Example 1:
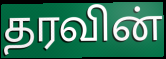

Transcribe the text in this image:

தரவின்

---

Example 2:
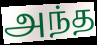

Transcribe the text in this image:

அந்த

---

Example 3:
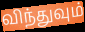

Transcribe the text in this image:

விந்துவும்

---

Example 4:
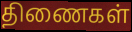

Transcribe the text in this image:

திணைகள்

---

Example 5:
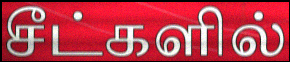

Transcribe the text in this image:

சீட்களில்